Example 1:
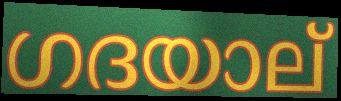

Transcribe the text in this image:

ഗദയാല്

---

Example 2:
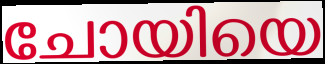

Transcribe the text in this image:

ചോയിയെ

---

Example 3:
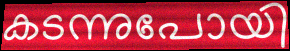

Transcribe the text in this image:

കടന്നുപോയി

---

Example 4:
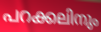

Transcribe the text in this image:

പറക്കലിനും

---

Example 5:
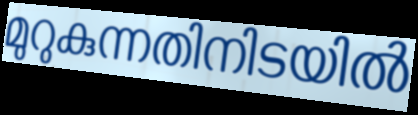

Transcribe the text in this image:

മുറുകുന്നതിനിടയിൽ